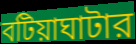
বটিয়াঘাটার